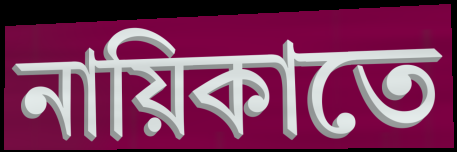
নায়িকাতে